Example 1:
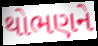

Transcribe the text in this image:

થોભણને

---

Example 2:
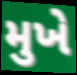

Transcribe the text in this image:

મુખે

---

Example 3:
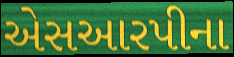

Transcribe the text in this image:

એસઆરપીના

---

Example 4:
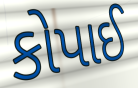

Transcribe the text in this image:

કોપાઈ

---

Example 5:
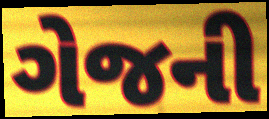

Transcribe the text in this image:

ગેજની